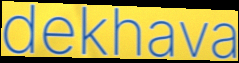
dekhava